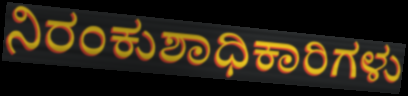
ನಿರಂಕುಶಾಧಿಕಾರಿಗಳು